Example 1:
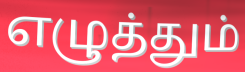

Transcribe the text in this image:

எழுத்தும்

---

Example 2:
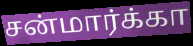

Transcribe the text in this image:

சன்மார்க்கா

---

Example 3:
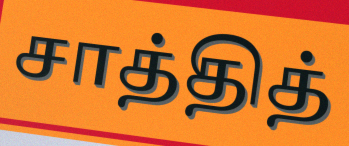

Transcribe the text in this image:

சாத்தித்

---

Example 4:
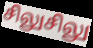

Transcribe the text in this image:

சிலுசிலு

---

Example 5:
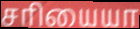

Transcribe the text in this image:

சரியையா